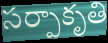
సర్పాకృతి